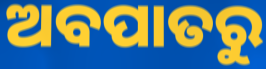
ଅବପାତରୁ